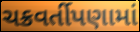
ચક્રવર્તીપણામાં